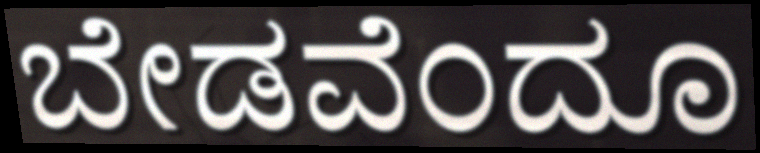
ಬೇಡವೆಂದೂ